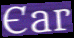
Ear